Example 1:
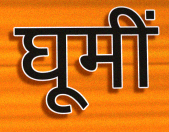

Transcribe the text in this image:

घूमीं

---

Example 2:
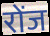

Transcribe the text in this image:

रोंज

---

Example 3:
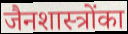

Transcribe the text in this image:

जैनशास्त्रोंका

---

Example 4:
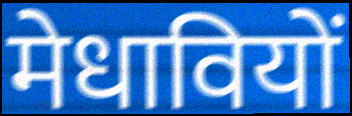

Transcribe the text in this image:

मेधावियों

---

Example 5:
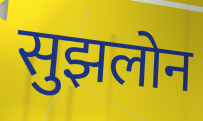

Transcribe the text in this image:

सुझलोन